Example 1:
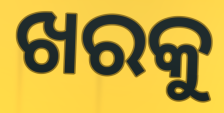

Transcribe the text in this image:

ଖରକୁ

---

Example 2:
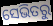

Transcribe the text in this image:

ସେଭିତରୁ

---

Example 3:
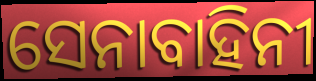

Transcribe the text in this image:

ସେନାବାହିନୀ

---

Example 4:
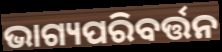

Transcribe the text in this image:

ଭାଗ୍ୟପରିବର୍ତ୍ତନ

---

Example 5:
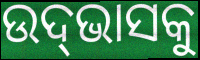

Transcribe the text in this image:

ଉଦ୍‌ଭାସକୁ